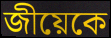
জীয়েকে